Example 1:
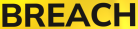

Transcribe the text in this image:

BREACH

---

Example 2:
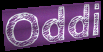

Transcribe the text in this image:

Oddi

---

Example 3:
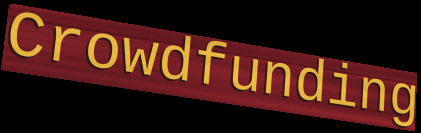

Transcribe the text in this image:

Crowdfunding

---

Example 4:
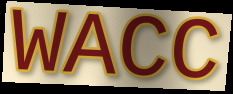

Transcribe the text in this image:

WACC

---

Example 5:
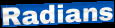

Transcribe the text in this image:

Radians